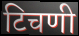
टिचणी